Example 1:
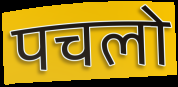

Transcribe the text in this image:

पचलो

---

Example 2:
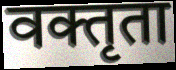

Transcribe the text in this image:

वक्तृता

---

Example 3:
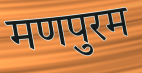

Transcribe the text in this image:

मणपुरम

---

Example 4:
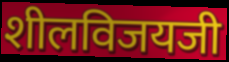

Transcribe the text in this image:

शीलविजयजी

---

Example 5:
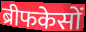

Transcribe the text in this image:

ब्रीफकेसों